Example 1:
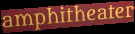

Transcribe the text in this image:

amphitheater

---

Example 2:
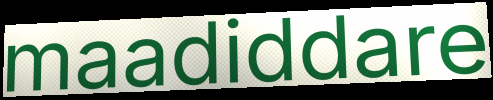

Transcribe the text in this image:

maadiddare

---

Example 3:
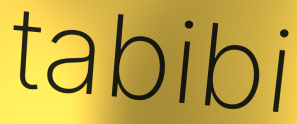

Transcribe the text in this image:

tabibi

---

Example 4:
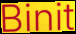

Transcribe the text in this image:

Binit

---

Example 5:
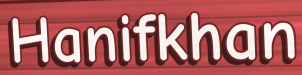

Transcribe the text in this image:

Hanifkhan